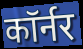
कॉर्नर